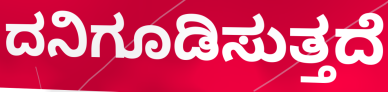
ದನಿಗೂಡಿಸುತ್ತದೆ